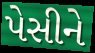
પેસીને